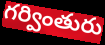
గర్వింతురు